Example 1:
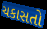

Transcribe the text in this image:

ચકાસતો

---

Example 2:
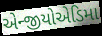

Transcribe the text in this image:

એન્જીયોએડિમા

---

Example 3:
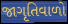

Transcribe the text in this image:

જાગૃતિવાળો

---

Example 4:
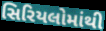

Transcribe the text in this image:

સિરિયલોમાંથી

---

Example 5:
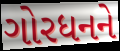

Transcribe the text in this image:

ગોરધનને